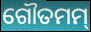
ଗୌତମମ୍